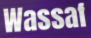
Wassaf